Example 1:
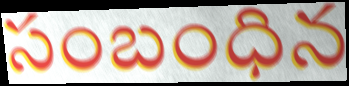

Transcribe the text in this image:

సంబంధిన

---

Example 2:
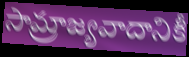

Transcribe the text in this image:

సామ్రాజ్యవాదానికీ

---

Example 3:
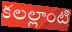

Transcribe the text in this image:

కలల్లాంటి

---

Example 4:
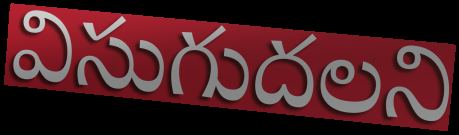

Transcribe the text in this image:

విసుగుదలని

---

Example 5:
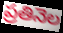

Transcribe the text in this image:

ప్రతినెల